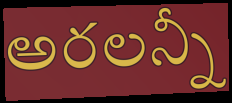
అరలన్నీ